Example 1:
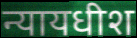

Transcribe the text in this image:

न्यायधीश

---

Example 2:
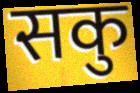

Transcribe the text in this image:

सकु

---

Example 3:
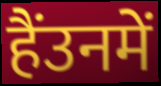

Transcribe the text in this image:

हैंउनमें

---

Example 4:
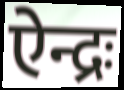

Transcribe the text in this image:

ऐन्द्रः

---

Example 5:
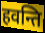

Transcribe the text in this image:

हवन्ति